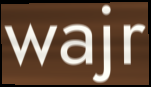
wajr